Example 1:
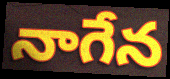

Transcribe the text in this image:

నాగేన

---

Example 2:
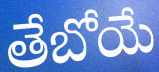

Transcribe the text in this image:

తేబోయే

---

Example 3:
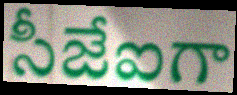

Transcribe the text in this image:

సీజేఐగా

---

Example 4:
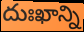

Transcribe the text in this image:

దుఃఖాన్ని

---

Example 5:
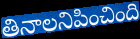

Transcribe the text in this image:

తినాలనిపించింది